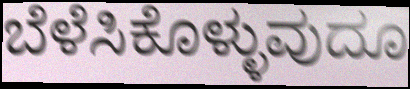
ಬೆಳೆಸಿಕೊಳ್ಳುವುದೂ